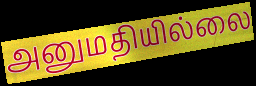
அனுமதியில்லை